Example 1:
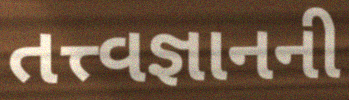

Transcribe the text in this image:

તત્ત્વજ્ઞાનની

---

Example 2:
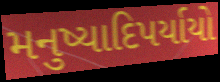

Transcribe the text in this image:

મનુષ્યાદિપર્યાયો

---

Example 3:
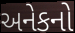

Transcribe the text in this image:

અનેકનો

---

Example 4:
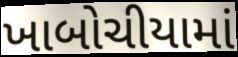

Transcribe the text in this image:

ખાબોચીયામાં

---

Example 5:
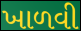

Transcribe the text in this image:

ખાળવી